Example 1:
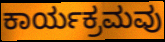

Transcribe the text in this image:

ಕಾರ್ಯಕ್ರಮವು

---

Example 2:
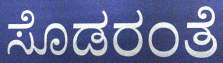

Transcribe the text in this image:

ಸೊಡರಂತೆ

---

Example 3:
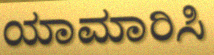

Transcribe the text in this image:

ಯಾಮಾರಿಸಿ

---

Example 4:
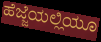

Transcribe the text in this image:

ಹೆಜ್ಜೆಯಲ್ಲಿಯೂ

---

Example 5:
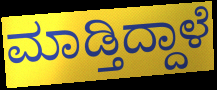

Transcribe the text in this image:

ಮಾಡ್ತಿದ್ದಾಳೆ